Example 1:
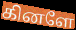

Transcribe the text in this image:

கினளே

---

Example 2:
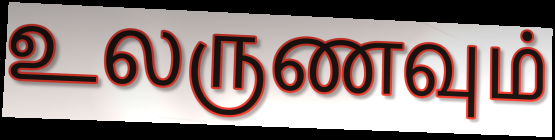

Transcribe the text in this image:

உலருணவும்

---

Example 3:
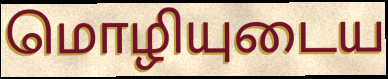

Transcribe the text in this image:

மொழியுடைய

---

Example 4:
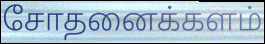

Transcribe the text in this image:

சோதனைக்களம்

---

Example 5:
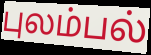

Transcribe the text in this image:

புலம்பல்